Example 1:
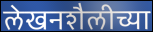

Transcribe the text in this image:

लेखनशैलीच्या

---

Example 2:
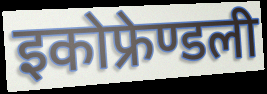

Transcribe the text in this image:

इकोफ्रेण्डली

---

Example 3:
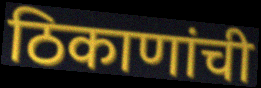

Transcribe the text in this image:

ठिकाणांची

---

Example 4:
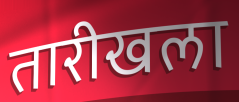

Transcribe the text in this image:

तारीखला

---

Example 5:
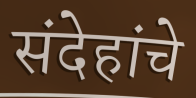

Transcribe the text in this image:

संदेहांचे